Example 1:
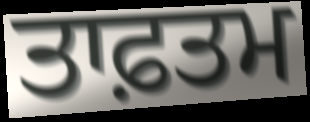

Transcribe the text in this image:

ਤਾਫ਼ਤਮ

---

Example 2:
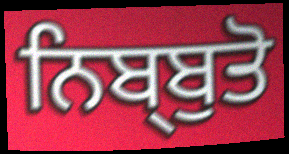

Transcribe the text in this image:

ਨਿਬ੍ਬੁਤੋ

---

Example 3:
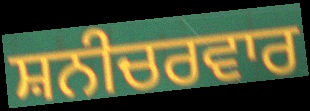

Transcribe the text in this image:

ਸ਼ਨੀਚਰਵਾਰ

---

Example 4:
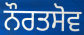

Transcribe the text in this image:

ਨੌਰਤਸੋਵ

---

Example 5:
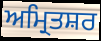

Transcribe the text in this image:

ਅਮ੍ਰਿਤਸ਼ਰ